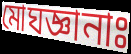
মোঘজ্ঞানাঃ